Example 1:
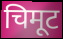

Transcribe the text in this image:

चिमूट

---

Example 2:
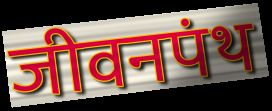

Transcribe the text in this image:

जीवनपंथ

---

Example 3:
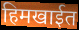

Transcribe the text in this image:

हिमखाईत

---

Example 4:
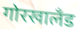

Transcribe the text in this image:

गोरखालॅंड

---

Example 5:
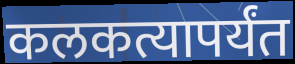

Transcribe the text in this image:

कलकत्यापर्यंत